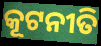
କୂଟନୀତି